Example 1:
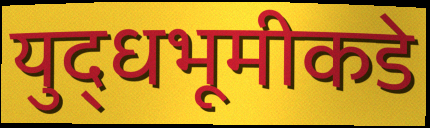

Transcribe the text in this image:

युद्धभूमीकडे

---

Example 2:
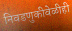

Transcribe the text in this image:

निवडणुकीवेळीही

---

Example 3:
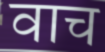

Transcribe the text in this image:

वाच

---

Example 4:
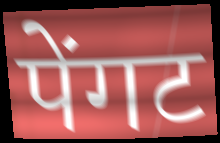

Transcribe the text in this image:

पेंगट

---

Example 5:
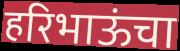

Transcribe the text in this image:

हरिभाऊंचा